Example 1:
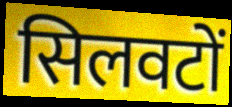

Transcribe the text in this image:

सिलवटों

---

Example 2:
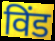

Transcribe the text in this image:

विंड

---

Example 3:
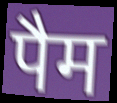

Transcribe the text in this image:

पैम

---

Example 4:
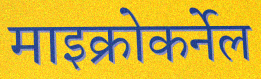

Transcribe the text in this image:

माइक्रोकर्नेल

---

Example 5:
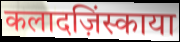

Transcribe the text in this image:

कलादज़िंस्काया